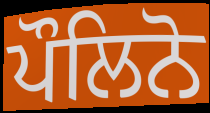
ਪੌਲਿਨੋ